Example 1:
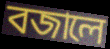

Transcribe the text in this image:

বজালে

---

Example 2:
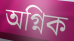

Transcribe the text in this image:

অগ্নিক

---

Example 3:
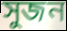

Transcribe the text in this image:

সুজন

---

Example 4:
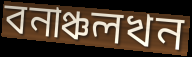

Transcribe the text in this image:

বনাঞ্চলখন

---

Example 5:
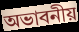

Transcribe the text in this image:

অভাবনীয়